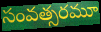
సంవత్సరమూ